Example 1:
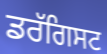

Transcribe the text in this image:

ਡਰੱਗਿਸਟ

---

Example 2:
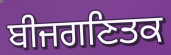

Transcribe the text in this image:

ਬੀਜਗਣਿਤਕ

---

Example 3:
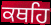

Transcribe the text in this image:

ਕਥਹਿ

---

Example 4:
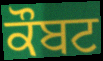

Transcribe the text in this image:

ਕੌਬਟ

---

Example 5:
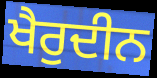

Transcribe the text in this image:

ਖੈਰੁਦੀਨ